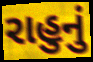
રાહુનું